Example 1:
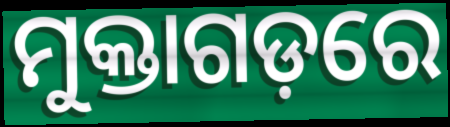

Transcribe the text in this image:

ମୁକ୍ତାଗଡ଼ରେ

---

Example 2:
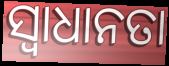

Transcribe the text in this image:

ସ୍ୱାଧାନତା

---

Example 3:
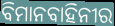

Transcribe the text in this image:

ବିମାନବାହିନୀର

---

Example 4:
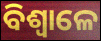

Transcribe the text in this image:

ବିଶ୍ଵାଳେ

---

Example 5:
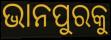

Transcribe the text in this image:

ଭାନପୁରକୁ